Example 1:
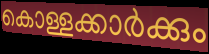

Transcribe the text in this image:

കൊള്ളക്കാർക്കും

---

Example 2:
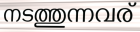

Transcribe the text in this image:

നടത്തുന്നവര്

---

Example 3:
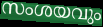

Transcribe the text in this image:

സംശയവും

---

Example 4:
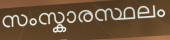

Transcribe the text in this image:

സംസ്കാരസ്ഥലം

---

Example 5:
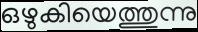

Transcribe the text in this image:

ഒഴുകിയെത്തുന്നു